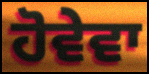
ਹੋਵੇਵਾ